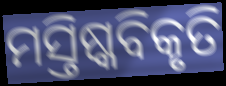
ମସ୍ତିଷ୍କବିକୃତି